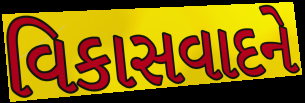
વિકાસવાદને